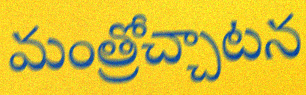
మంత్రోచ్చాటన